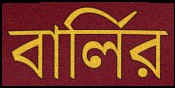
বার্লির